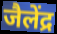
जैलेंद्र